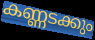
കണ്ണടക്കും